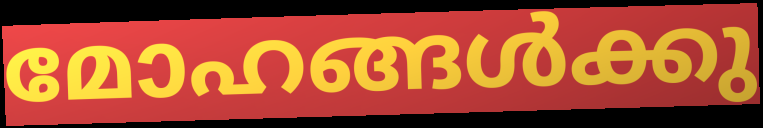
മോഹങ്ങൾക്കു